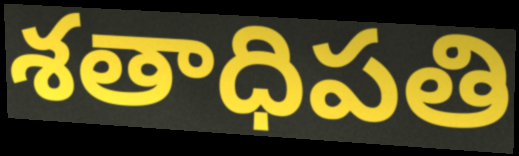
శతాధిపతి